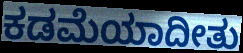
ಕಡಮೆಯಾದೀತು